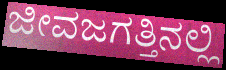
ಜೀವಜಗತ್ತಿನಲ್ಲಿ